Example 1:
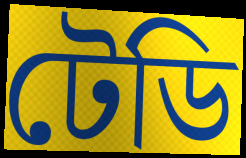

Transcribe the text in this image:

টেডি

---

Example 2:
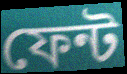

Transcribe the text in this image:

ফেন্ট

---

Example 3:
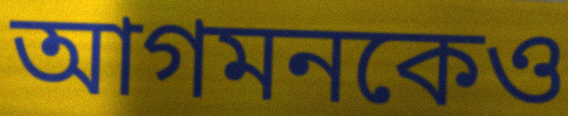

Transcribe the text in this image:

আগমনকেও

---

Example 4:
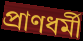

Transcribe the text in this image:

প্রাণধর্মী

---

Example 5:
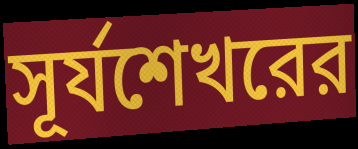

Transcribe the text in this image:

সূর্যশেখরের